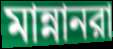
মান্নানরা